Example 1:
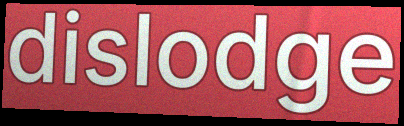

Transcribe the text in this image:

dislodge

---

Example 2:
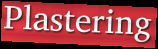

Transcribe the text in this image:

Plastering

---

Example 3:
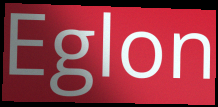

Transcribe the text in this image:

Eglon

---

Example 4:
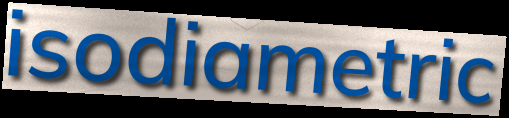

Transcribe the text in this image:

isodiametric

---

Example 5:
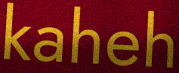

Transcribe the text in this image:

kaheh